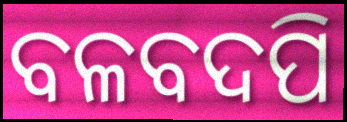
ବଳବଦପି